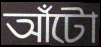
আঁটো